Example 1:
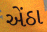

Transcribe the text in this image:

એંઠા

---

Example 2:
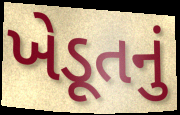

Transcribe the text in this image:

ખેડૂતનું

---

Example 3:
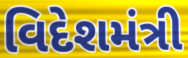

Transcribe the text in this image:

વિદેશમંત્રી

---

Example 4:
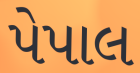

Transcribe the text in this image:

પેપાલ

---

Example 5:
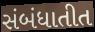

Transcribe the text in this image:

સંબંધાતીત